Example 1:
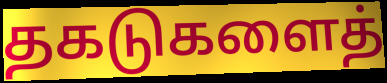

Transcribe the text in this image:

தகடுகளைத்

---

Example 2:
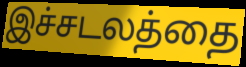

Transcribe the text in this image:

இச்சடலத்தை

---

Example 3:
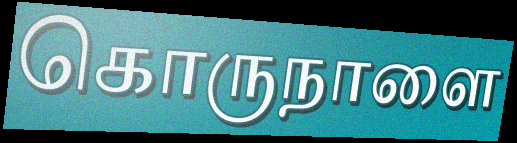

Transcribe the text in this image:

கொருநாளை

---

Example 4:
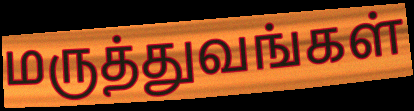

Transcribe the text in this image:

மருத்துவங்கள்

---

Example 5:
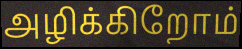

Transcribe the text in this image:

அழிக்கிறோம்